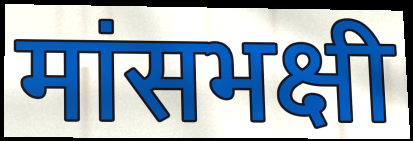
मांसभक्षी